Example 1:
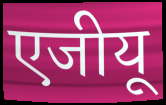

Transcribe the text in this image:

एजीयू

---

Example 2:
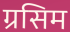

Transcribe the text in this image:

ग्रसिम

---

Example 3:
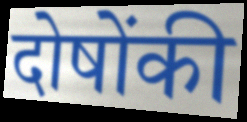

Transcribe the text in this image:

दोषोंकी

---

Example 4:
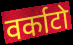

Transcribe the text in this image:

वर्काटो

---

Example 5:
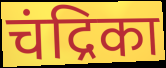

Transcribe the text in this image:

चंद्रिका